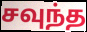
சவுந்த